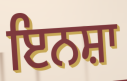
ਇਨਸ਼ਾ